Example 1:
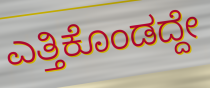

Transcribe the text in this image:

ಎತ್ತಿಕೊಂಡದ್ದೇ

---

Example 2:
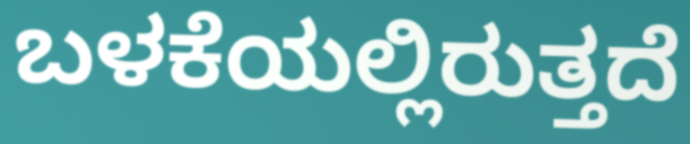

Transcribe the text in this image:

ಬಳಕೆಯಲ್ಲಿರುತ್ತದೆ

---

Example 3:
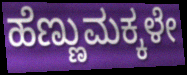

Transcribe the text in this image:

ಹೆಣ್ಣುಮಕ್ಕಳೇ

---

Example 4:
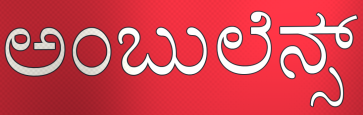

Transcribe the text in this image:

ಅಂಬುಲೆನ್ಸ್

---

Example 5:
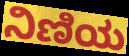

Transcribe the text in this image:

ನಿಣಿಯ